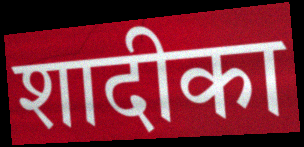
शादीका